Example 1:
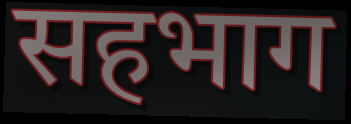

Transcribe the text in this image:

सहभाग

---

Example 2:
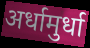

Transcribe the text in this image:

अर्धामुर्धा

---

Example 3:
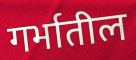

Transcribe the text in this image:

गर्भातील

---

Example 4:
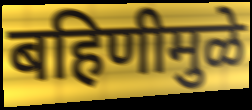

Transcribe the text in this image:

बहिणीमुळे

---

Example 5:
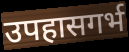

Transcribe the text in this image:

उपहासगर्भ